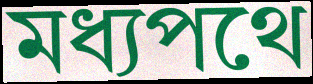
মধ্যপথে